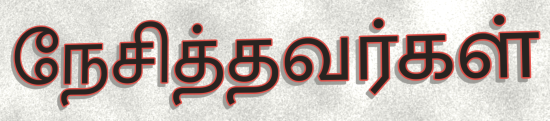
நேசித்தவர்கள்